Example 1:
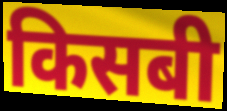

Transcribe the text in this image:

किसबी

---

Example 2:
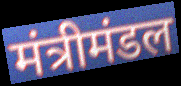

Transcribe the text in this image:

मंत्रीमंडल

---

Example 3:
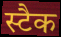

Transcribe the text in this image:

स्‍टैक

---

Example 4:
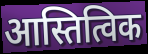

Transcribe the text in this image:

आस्तित्विक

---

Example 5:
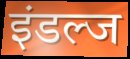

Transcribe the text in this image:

इंडल्ज